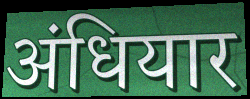
अंधियार